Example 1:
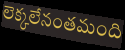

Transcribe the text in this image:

లెక్కలేనంతమంది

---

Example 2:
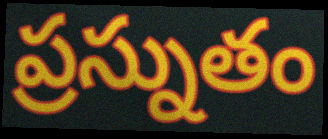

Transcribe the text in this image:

ప్రస్నుతం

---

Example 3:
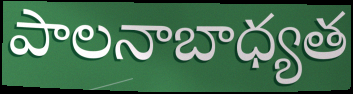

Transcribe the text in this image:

పాలనాబాధ్యత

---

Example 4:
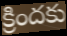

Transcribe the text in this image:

క్రిందకు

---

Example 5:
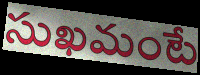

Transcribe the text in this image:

సుఖమంటే